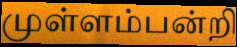
முள்ளம்பன்றி